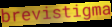
brevistigma